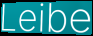
Leibe